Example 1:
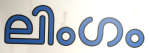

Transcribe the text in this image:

ലിംഗം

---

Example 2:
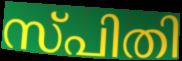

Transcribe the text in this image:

സ്പിതി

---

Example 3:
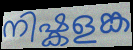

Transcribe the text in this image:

നിഷ്കളങ്ക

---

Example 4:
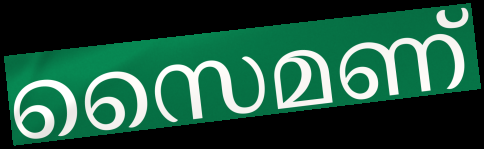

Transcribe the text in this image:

സൈമണ്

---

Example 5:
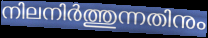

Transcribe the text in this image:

നിലനിർത്തുന്നതിനും